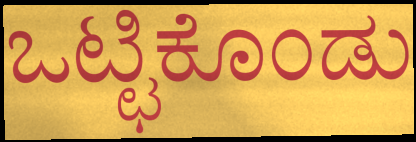
ಒಟ್ಟಿಕೊಂಡು